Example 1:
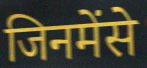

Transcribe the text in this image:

जिनमेंसे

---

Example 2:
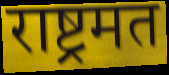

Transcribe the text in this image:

राष्ट्रमत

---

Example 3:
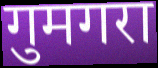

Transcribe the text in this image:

गुमगरा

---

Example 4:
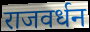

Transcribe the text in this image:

राजवर्धन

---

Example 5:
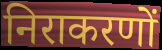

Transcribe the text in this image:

निराकरणों